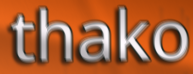
thako